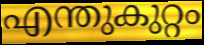
എന്തുകുറ്റം